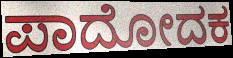
ಪಾದೋದಕ